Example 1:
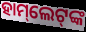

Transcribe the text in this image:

ହାମ୍‌ଲେଟ୍‌ଙ୍କ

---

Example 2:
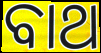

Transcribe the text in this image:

ବାଥ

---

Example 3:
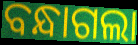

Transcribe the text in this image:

ବନ୍ଧାଗଲା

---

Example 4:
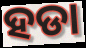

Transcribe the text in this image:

ହଡା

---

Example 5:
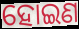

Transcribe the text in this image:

ହୋଇଣ